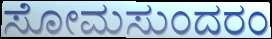
ಸೋಮಸುಂದರಂ